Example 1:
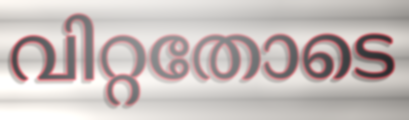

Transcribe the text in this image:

വിറ്റതോടെ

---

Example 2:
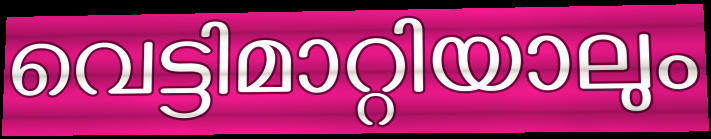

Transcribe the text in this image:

വെട്ടിമാറ്റിയാലും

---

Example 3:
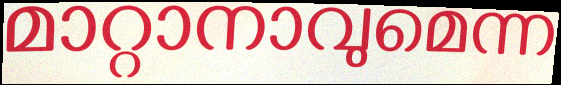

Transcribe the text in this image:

മാറ്റാനാവുമെന്ന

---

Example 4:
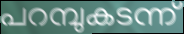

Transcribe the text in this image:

പറമ്പുകടന്ന്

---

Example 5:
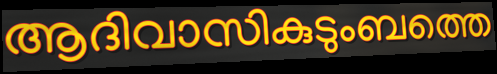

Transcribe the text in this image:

ആദിവാസികുടുംബത്തെ